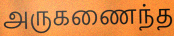
அருகணைந்த